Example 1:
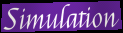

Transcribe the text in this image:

Simulation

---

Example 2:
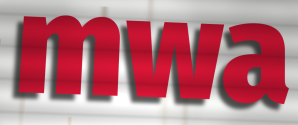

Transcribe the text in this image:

mwa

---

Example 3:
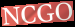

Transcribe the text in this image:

NCGO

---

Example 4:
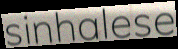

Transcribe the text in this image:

sinhalese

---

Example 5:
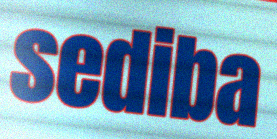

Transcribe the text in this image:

sediba